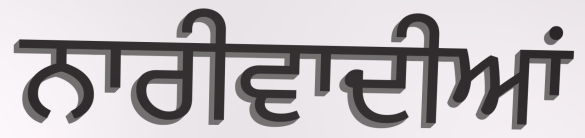
ਨਾਰੀਵਾਦੀਆਂ